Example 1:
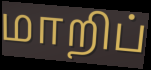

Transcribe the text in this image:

மாறிப்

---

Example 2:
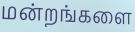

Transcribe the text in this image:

மன்றங்களை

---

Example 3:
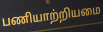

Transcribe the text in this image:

பணியாற்றியமை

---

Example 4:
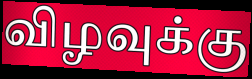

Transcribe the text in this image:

விழவுக்கு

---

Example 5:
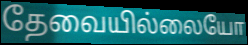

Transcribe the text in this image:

தேவையில்லையோ